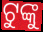
ଟୁଙ୍କୁ